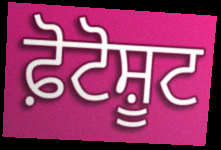
ਫ਼ੋਟੋਸ਼ੂਟ